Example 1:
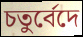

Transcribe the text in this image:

চতুর্বেদে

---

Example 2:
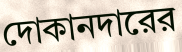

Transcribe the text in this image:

দোকানদারের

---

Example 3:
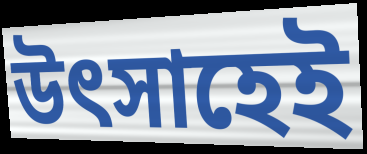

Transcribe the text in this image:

উৎসাহেই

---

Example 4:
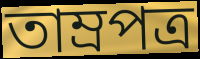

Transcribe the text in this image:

তাম্রপত্র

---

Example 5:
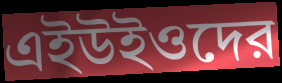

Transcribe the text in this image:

এইউইওদের